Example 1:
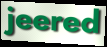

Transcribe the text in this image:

jeered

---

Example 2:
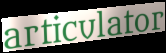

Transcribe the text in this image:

articulator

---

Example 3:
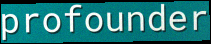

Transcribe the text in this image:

profounder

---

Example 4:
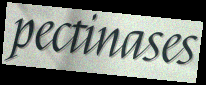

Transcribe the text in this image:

pectinases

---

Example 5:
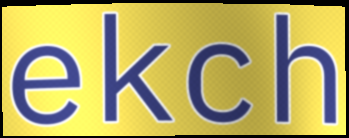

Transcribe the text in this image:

ekch